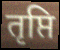
तृप्ति